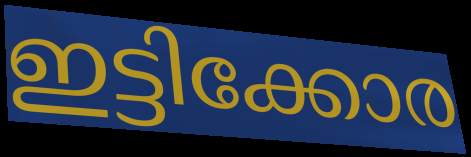
ഇട്ടിക്കോര